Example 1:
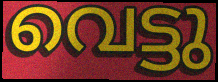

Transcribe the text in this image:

വെട്ടു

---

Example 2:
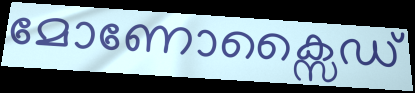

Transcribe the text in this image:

മോണോക്സൈഡ്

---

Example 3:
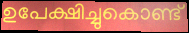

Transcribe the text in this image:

ഉപേക്ഷിച്ചുകൊണ്ട്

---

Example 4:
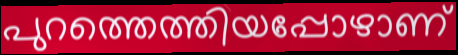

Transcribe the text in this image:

പുറത്തെത്തിയപ്പോഴാണ്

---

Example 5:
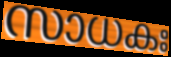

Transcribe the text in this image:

സാധകഃ